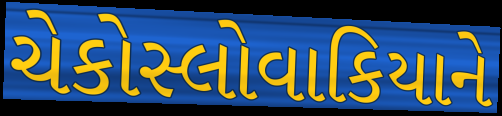
ચેકોસ્લોવાકિયાને